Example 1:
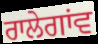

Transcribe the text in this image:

ਰਾਲੇਗਾਂਵ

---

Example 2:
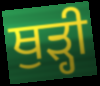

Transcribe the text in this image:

ਥੁੜ੍ਹੀ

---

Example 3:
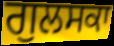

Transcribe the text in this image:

ਗੁਲਸਕਾ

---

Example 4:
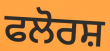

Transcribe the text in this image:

ਫਲੋਰਸ਼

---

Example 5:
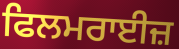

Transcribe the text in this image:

ਫਿਲਮਰਾਈਜ਼